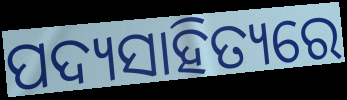
ପଦ୍ୟସାହିତ୍ୟରେ